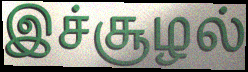
இச்சூழல்